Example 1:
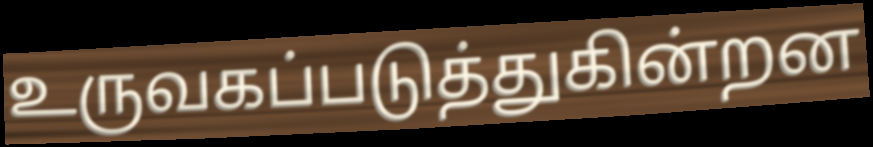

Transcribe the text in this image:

உருவகப்படுத்துகின்றன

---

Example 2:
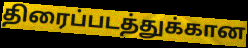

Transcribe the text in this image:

திரைப்படத்துக்கான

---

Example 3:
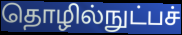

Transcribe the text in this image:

தொழில்நுட்பச்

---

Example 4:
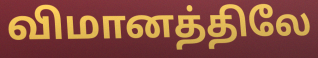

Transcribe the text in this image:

விமானத்திலே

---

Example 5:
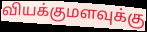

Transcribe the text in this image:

வியக்குமளவுக்கு